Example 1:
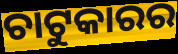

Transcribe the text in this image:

ଚାଟୁକାରର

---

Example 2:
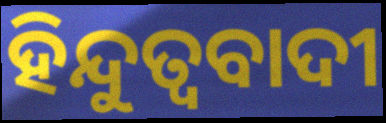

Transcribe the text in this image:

ହିନ୍ଦୁତ୍ୱବାଦୀ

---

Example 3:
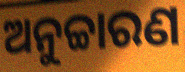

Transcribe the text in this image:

ଅନୁଚ୍ଚାରଣ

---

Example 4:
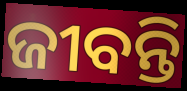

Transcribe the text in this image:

ଜୀବନ୍ତି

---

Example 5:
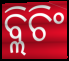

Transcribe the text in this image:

ବ୍ଲିଚିଂ